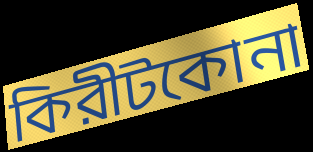
কিরীটকোনা